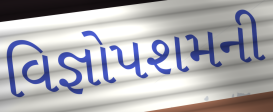
વિજ્ઞોપશમની